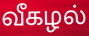
வீகழல்